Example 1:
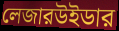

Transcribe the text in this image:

লেজারউইডার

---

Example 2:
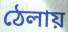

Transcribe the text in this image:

ঠেলায়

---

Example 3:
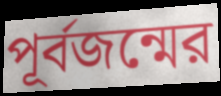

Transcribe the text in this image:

পূর্বজন্মের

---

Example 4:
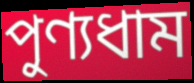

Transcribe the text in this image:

পুণ্যধাম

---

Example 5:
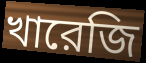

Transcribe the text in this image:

খারেজি